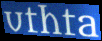
uthta